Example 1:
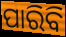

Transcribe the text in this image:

ପାରିବି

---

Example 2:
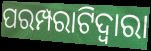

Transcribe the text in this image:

ପରମ୍ପରାଟିଦ୍ୱାରା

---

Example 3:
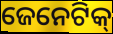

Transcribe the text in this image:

ଜେନେଟିକ୍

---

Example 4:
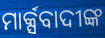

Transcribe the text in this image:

ମାର୍କ୍ସବାଦୀଙ୍କ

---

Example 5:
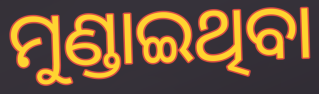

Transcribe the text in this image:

ମୁଣ୍ଡାଇଥିବା